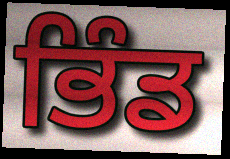
ਭਿੰਡ